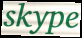
skype